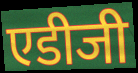
एडीजी